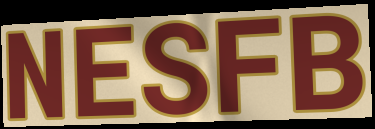
NESFB